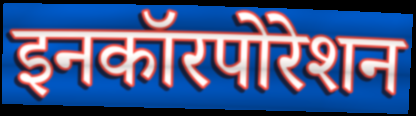
इनकॉरपोरेशन